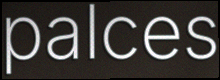
palces